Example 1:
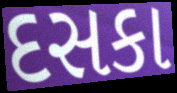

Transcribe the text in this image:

દસકા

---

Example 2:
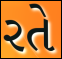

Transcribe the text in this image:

રતે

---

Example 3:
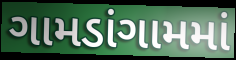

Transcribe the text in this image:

ગામડાંગામમાં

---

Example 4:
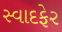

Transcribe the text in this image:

સ્વાદફેર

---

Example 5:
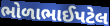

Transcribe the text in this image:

ભોળાભાઈપટેલ